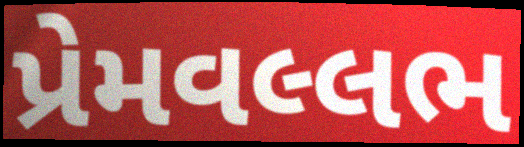
પ્રેમવલ્લભ